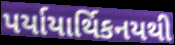
પર્યાયાર્થિકનયથી